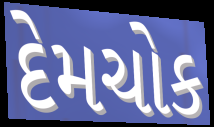
દેમચોક